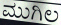
ಮುಗಿಲ